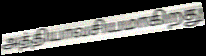
அத்தியாவசியமாகிறது